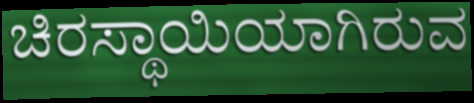
ಚಿರಸ್ಥಾಯಿಯಾಗಿರುವ